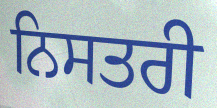
ਨਿਸਤਰੀ